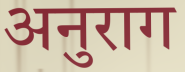
अनुराग